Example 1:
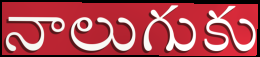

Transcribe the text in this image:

నాలుగుకు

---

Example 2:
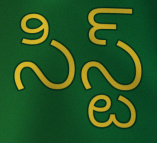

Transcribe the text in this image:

సిస్ట్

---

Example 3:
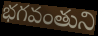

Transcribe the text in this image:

భగవంతుని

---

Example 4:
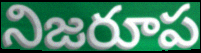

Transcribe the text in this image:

నిజరూప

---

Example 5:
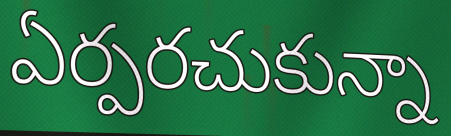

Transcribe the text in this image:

ఏర్పరచుకున్నా